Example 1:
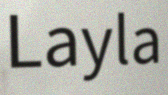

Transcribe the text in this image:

Layla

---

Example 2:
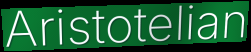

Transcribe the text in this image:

Aristotelian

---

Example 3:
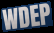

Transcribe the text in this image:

WDEP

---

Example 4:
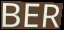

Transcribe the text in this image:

BER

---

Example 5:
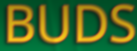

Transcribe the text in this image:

BUDS